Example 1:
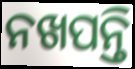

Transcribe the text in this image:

ନଖପନ୍ତି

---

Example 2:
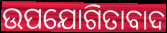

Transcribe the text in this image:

ଉପଯୋଗିତାବାଦ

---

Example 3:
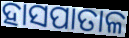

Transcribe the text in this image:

ହାସପାତାଳ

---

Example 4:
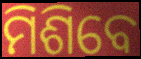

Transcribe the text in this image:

ମିଶିବେ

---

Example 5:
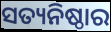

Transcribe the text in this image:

ସତ୍ୟନିଷ୍ଠାର